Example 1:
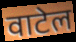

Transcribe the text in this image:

वाटेल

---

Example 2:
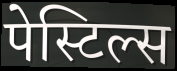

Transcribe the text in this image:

पेस्टिल्स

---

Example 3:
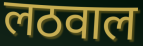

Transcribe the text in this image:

लठवाल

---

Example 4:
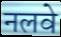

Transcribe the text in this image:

नलवे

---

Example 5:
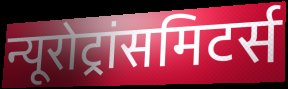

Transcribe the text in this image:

न्यूरोट्रांसमिटर्स